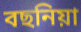
বছনিয়া